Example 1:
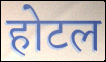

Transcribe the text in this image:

होटल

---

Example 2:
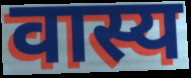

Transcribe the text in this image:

वास्य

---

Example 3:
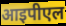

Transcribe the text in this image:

आइपीएल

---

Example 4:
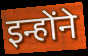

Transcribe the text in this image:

इन्होंने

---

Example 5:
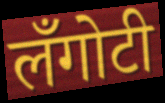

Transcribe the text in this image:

लँगोटी